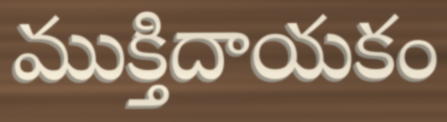
ముక్తిదాయకం